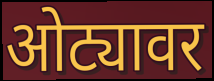
ओट्यावर